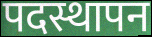
पदस्थापन